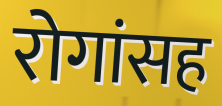
रोगांसह